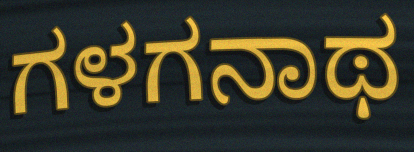
ಗಳಗನಾಥ